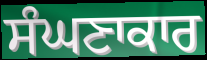
ਸੰਘਣਾਕਾਰ